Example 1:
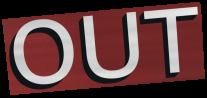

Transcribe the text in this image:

OUT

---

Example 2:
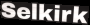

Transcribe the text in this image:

Selkirk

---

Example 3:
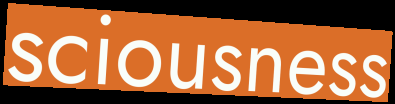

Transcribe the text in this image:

sciousness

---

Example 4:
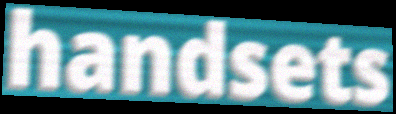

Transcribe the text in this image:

handsets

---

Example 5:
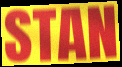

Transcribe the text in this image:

STAN